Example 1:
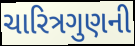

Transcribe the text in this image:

ચારિત્રગુણની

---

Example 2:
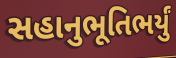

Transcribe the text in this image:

સહાનુભૂતિભર્યું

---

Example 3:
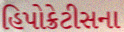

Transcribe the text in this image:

હિપોક્રેટીસના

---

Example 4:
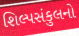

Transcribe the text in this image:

શિલ્પસંકુલનો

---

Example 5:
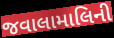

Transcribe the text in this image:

જવાલામાલિની